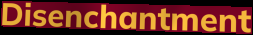
Disenchantment